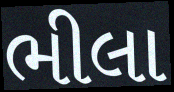
ભીલા